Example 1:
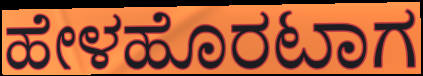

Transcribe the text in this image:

ಹೇಳಹೊರಟಾಗ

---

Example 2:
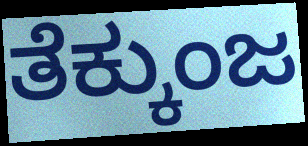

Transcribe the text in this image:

ತೆಕ್ಕುಂಜ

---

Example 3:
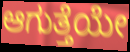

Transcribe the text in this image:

ಆಗುತ್ತೆಯೇ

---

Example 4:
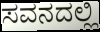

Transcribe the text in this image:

ಸವನದಲ್ಲಿ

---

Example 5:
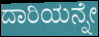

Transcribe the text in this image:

ದಾರಿಯನ್ನೇ